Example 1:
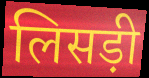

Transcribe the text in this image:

लिसड़ी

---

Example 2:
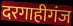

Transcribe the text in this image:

दरगाहीगंज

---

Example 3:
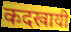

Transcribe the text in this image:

कदखायी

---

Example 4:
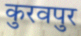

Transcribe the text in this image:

कुरवपुर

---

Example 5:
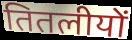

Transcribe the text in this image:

तितलीयों